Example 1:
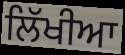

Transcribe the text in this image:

ਲਿੱਖੀਆ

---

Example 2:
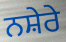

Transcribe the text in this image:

ਨਸ਼ੇਰੇ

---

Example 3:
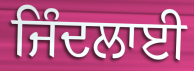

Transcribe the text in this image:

ਜਿੰਦਲਾਈ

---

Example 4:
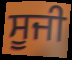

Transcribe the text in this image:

ਸੂਜੀ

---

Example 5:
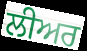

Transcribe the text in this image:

ਲੀਅਰ